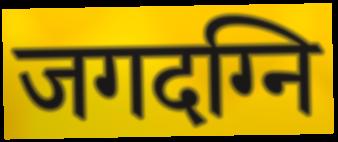
जगदग्नि